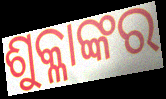
ଶୁକ୍ଳାଙ୍କର